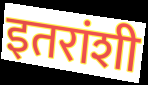
इतरांशी